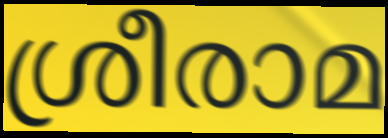
ശ്രീരാമ